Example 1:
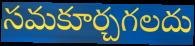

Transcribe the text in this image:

సమకూర్చగలదు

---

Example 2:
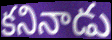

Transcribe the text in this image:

కనినాడు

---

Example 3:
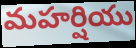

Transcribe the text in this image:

మహర్షియు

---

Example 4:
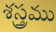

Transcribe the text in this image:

శస్త్రము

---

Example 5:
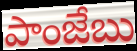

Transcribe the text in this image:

పాంజేబు